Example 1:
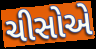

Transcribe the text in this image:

ચીસોએ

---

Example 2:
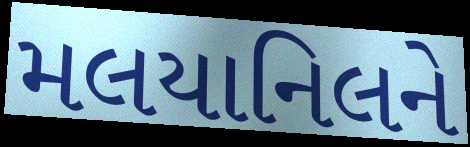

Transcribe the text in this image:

મલયાનિલને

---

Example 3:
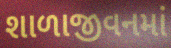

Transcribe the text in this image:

શાળાજીવનમાં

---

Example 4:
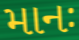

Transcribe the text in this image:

માનઃ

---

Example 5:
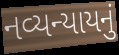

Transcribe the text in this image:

નવ્યન્યાયનું